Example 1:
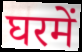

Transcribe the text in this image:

घरमें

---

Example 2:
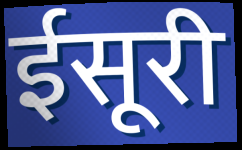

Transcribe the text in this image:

ईसूरी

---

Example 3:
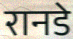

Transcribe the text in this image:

रानडे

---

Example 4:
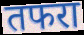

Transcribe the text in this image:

तफरा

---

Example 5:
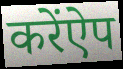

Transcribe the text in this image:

करेंऐप